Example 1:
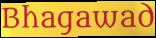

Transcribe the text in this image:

Bhagawad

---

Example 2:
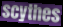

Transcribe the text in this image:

scythes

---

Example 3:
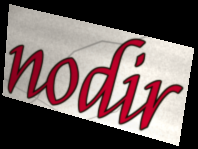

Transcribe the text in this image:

nodir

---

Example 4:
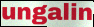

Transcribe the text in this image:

ungalin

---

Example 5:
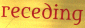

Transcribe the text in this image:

receding